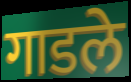
गाडले